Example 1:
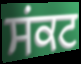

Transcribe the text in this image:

ਸਂਕਟ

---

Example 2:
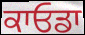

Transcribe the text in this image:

ਕਾਓਡਾ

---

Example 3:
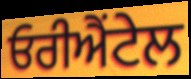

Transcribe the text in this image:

ਓਰੀਐਂਟੇਲ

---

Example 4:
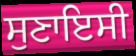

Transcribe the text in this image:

ਸੁਣਾਇਸੀ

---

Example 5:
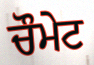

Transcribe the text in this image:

ਚੌਮੇਟ